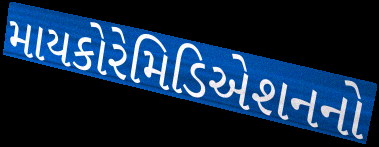
માયકોરેમિડિએશનનો